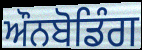
ਔਨਬੋਡਿੰਗ